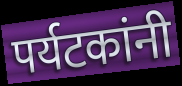
पर्यटकांनी